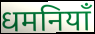
धमनियाँ